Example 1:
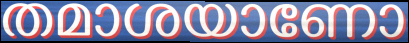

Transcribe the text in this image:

തമാശയാണോ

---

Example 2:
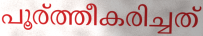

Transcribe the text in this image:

പൂര്ത്തീകരിച്ചത്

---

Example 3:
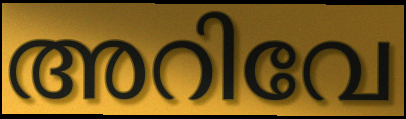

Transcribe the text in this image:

അറിവേ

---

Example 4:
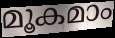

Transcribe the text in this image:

മൂകമാം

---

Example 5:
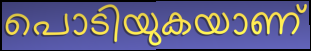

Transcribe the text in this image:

പൊടിയുകയാണ്